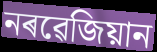
নৰৱেজিয়ান